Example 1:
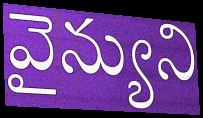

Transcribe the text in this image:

వైన్యుని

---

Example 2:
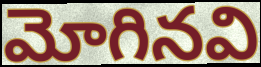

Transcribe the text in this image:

మోగినవి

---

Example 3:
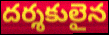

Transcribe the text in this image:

దర్శకులైన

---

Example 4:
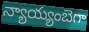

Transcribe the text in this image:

న్యాయ్యంబెగా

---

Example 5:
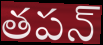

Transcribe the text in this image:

తపన్